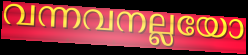
വന്നവനല്ലയോ